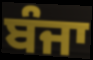
ਬੰਜਾ